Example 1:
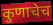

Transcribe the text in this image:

कुणाचेच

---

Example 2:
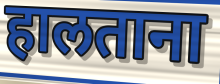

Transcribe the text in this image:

हालताना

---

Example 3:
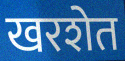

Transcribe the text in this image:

खरशेत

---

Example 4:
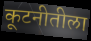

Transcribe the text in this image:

कूटनीतीला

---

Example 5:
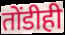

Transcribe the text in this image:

तोंडीही